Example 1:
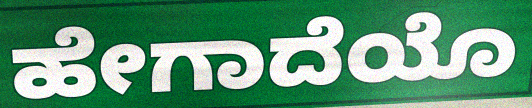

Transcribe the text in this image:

ಹೇಗಾದೆಯೊ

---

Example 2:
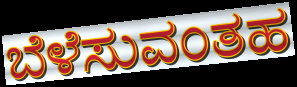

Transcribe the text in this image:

ಬೆಳೆಸುವಂತಹ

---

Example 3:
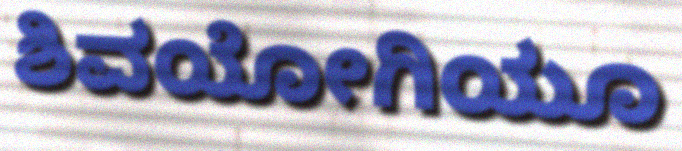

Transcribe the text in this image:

ಶಿವಯೋಗಿಯೂ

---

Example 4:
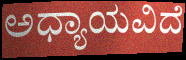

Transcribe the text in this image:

ಅಧ್ಯಾಯವಿದೆ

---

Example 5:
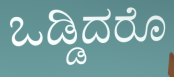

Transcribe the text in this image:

ಒಡ್ಡಿದರೊ